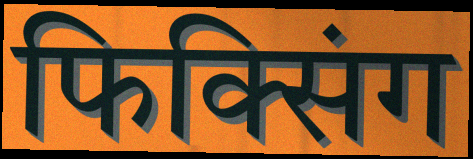
फिक्‍सिंग